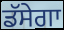
ਡੱਸੇਗਾ